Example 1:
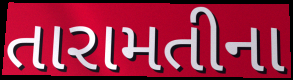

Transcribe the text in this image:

તારામતીના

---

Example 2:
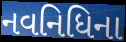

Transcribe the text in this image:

નવનિધિના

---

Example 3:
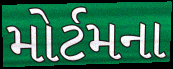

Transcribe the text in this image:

મોર્ટમના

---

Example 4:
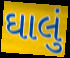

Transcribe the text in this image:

ઘાલું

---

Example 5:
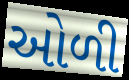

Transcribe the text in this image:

ઓળી